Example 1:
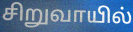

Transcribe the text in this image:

சிறுவாயில்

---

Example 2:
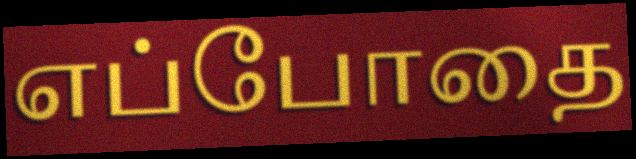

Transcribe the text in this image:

எப்போதை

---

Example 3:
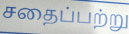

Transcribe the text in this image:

சதைப்பற்று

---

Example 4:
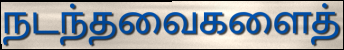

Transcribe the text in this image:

நடந்தவைகளைத்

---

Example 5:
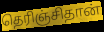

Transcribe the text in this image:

தெரிஞ்சிதான்